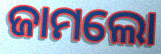
ଜାମଲୋ